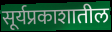
सूर्यप्रकाशातील